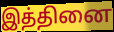
இத்தினை